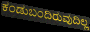
ಕಂಡುಬಂದಿರುವುದಿಲ್ಲ